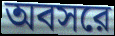
অবসরে